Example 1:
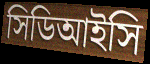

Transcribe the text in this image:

সিডিআইসি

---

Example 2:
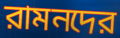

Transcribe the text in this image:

রামনদের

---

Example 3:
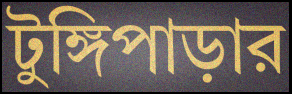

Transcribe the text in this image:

টুঙ্গিপাড়ার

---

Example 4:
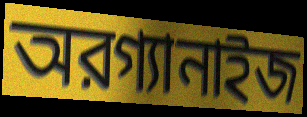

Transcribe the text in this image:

অরগ্যানাইজ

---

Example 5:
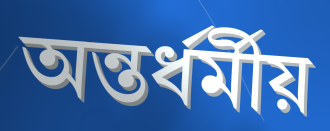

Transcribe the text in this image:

অন্তর্ধর্মীয়